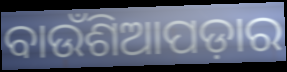
ବାଉଁଶିଆପଡ଼ାର